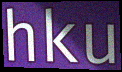
hku